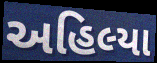
અહિલ્યા